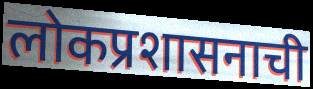
लोकप्रशासनाची